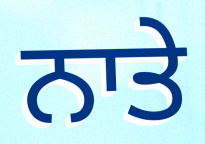
ਨਾਤੇ